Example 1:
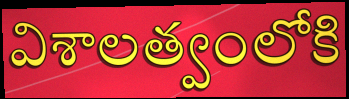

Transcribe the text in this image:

విశాలత్వంలోకి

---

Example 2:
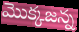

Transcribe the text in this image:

మొక్కజన్న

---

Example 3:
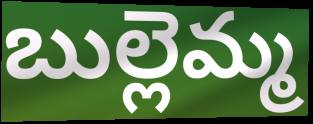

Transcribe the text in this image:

బుల్లెమ్మ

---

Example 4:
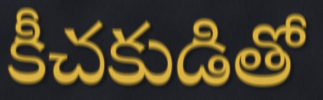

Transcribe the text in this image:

కీచకుడితో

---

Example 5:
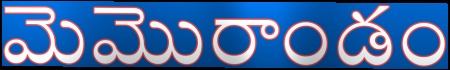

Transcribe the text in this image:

మెమొరాండం